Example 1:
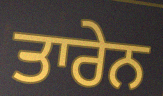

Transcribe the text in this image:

ਤਾਰੇਨ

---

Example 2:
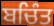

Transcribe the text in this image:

ਬਚਿੰਤ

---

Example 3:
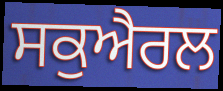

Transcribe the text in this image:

ਸਕੁਐਰਲ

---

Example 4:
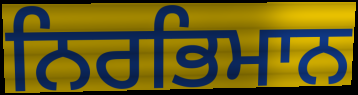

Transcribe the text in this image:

ਨਿਰਭਿਮਾਨ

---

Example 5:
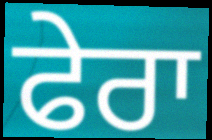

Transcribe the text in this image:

ਫੇਰਾ